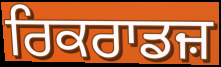
ਰਿਕਰਾਡਜ਼